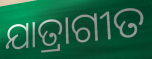
ଯାତ୍ରାଗୀତ